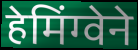
हेमिंग्वेने